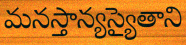
మనస్తాన్యస్యైతాని